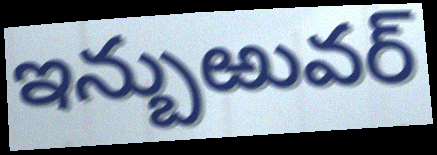
ఇన్బుఱువర్